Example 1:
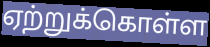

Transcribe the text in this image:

ஏற்றுக்கொள்ள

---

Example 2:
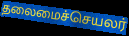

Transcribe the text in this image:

தலைமைச்செயலர்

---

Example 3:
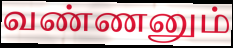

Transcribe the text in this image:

வண்ணனும்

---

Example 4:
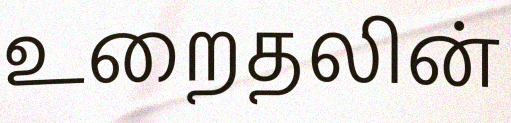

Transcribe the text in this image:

உறைதலின்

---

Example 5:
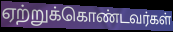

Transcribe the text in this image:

ஏற்றுக்கொண்டவர்கள்